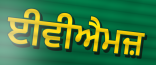
ਈਵੀਐਮਜ਼